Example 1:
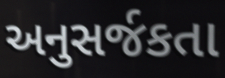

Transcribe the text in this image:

અનુસર્જકતા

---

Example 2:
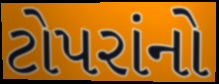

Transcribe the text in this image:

ટોપરાંનો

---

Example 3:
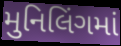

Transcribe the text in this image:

મુનિલિંગમાં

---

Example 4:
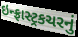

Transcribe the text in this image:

ઇન્ફ્રાસ્ટ્રકચરનું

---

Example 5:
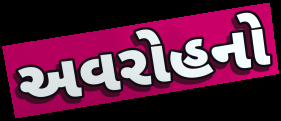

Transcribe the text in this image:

અવરોહનો